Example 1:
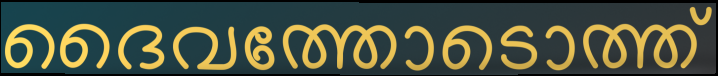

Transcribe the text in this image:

ദൈവത്തോടൊത്ത്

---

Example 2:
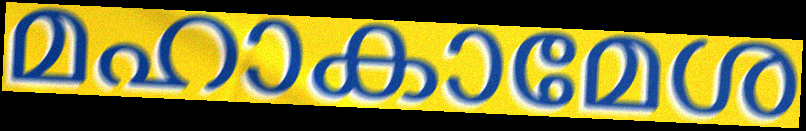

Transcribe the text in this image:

മഹാകാമേശ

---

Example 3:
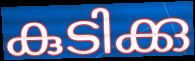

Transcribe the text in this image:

കുടിക്കു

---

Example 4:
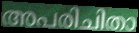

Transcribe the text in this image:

അപരിചിതാ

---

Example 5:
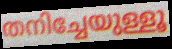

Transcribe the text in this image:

തനിച്ചേയുള്ളൂ